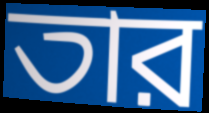
তার